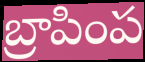
బ్రాపింప